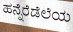
ಹನ್ನೆರೆಡೆಲೆಯ